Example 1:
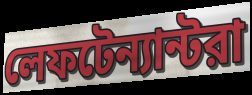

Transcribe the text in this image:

লেফটেন্যান্টরা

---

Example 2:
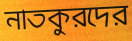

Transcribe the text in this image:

নাতকুরদের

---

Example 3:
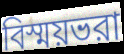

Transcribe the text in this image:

বিস্ময়ভরা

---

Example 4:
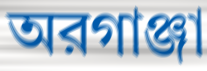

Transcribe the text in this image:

অরগাঞ্জা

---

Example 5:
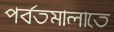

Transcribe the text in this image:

পর্বতমালাতে